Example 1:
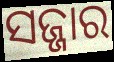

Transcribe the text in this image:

ସଜ୍ଜାର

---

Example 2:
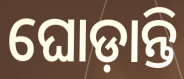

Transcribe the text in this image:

ଘୋଡ଼ାନ୍ତି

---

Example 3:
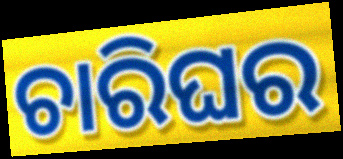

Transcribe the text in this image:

ଚାରିଘର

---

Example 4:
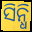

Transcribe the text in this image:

ସିନ୍ଧି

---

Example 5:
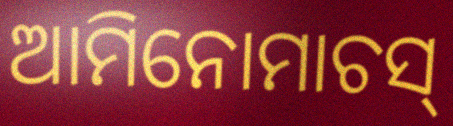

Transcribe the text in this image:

ଆମିନୋମାଚସ୍